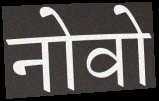
नोवो